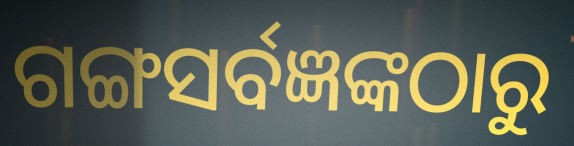
ଗଙ୍ଗସର୍ବଜ୍ଞଙ୍କଠାରୁ